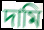
দামি